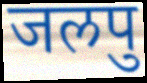
जलपु